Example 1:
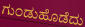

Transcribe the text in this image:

ಗುಂಡುಹೊಡೆದು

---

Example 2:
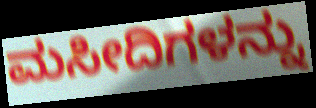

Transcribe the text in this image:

ಮಸೀದಿಗಳನ್ನು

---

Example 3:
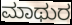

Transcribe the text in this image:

ಮಾಥುರ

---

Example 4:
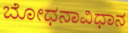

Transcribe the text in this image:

ಬೋಧನಾವಿಧಾನ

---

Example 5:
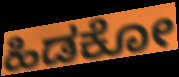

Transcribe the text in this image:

ಹಿಡಕೋ